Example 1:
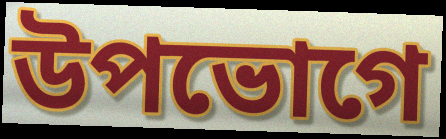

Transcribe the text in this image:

উপভোগে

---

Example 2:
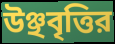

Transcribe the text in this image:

উঞ্ছবৃত্তির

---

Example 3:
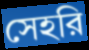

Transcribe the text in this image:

সেহরি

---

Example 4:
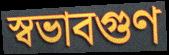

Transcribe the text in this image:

স্বভাবগুণ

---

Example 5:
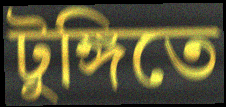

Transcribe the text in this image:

টুঙ্গিতে